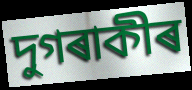
দুগৰাকীৰ